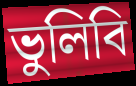
ভুলিবি